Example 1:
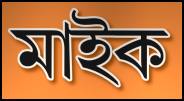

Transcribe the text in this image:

মাইক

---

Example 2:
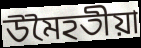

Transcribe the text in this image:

উমৈহতীয়া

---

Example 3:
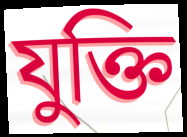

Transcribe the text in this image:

যুক্তি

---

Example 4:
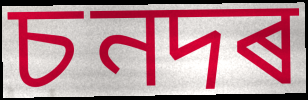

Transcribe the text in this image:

চনদৰ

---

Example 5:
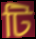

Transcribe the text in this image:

টি